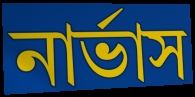
নার্ভাস